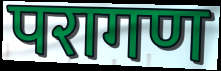
परागण